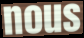
nous